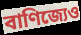
বাণিজ্যেও